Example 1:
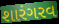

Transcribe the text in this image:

શારંગરવ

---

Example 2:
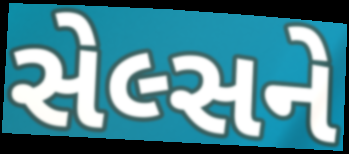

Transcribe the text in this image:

સેલ્સને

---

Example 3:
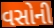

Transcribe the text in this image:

વસોની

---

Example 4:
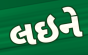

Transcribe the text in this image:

લઇને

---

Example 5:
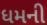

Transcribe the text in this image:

ધમની